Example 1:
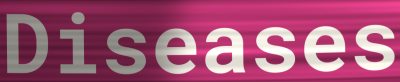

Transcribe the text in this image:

Diseases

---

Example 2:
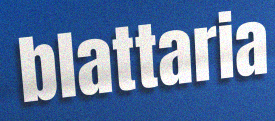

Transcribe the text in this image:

blattaria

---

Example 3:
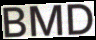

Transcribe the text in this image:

BMD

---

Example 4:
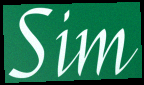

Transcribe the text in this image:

Sim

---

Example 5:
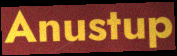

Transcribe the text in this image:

Anustup